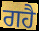
ਗਹੈ